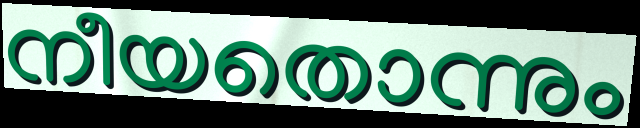
നീയതൊന്നും